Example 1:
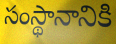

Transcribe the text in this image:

సంస్థానానికి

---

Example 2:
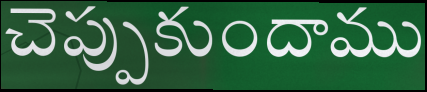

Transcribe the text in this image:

చెప్పుకుందాము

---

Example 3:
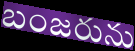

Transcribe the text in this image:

బంజరును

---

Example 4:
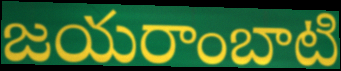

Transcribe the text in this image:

జయరాంబాటి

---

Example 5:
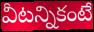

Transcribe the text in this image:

వీటన్నికంటే